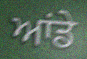
ਆਂਡੇ